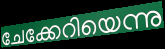
ചേക്കേറിയെന്നു